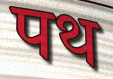
पथ